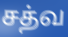
சத்வ